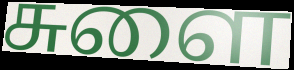
சுளை